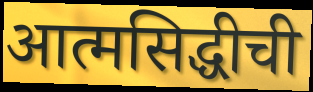
आत्मसिद्धीची